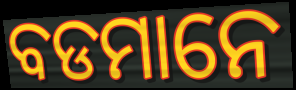
ବଡମାନେ